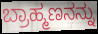
ಬ್ರಾಹ್ಮಣನನ್ನು